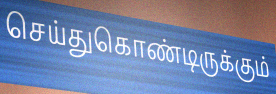
செய்துகொண்டிருக்கும்